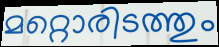
മറ്റൊരിടത്തും